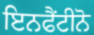
ਇਨਫੈਂਟੀਨੋ